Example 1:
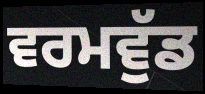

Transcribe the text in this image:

ਵਰਮਵੁੱਡ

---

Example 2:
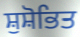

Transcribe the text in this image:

ਸ਼ੁਸ਼ੋਭਿਤ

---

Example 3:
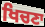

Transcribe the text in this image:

ਖਿਚਣਾ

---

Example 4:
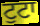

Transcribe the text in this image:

ਟੁਟਾ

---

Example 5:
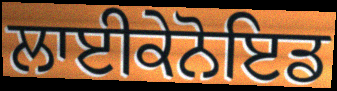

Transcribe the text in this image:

ਲਾਈਕੇਨੋਇਡ